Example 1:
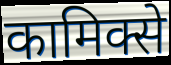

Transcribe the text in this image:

कामिक्से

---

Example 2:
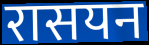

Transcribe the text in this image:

रासयन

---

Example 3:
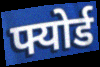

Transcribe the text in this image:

फ्योर्ड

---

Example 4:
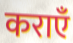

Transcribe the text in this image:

कराएँ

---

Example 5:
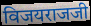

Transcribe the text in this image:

विजयराजजी